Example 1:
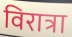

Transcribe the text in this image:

विरात्रा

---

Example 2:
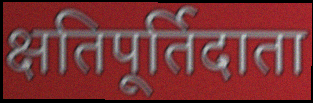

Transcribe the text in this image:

क्षतिपूर्तिदाता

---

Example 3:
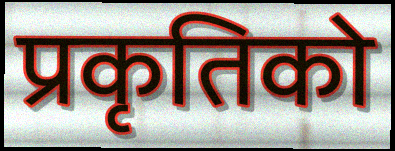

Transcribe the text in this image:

प्रकृतिको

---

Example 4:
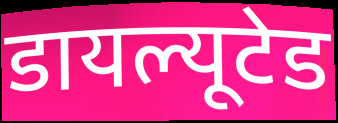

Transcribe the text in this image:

डायल्यूटेड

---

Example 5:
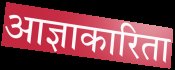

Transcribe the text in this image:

आज्ञाकारिता